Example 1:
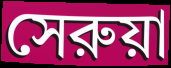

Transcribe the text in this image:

সেরুয়া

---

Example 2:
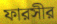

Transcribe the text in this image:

ফারসীর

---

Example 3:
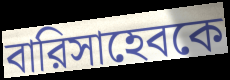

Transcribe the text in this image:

বারিসাহেবকে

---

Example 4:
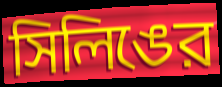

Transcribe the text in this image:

সিলিঙের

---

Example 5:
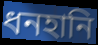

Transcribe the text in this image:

ধনহানি